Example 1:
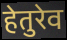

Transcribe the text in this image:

हेतुरेव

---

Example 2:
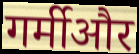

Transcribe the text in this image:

गर्मीऔर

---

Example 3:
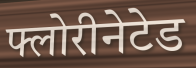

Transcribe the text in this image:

फ्लोरीनेटेड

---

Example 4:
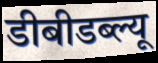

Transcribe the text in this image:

डीबीडब्ल्यू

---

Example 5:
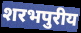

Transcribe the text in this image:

शरभपुरीय